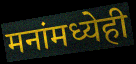
मनांमध्येही